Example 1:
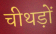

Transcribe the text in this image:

चीथड़ों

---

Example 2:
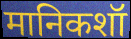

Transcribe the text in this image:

मानिकशॉ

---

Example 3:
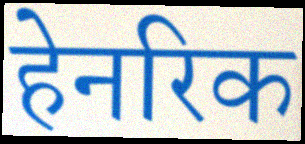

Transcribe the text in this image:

हेनरिक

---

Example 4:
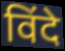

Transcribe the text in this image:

विंदे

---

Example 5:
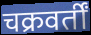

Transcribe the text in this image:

चक्रवर्तीं